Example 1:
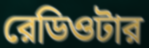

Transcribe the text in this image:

রেডিওটার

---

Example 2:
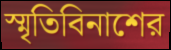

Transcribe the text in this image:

স্মৃতিবিনাশের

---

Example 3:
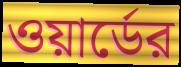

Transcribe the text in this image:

ওয়ার্ডের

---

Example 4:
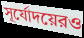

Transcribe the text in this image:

সূর্যোদয়েরও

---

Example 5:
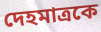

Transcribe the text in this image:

দেহমাত্রকে